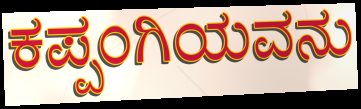
ಕಪ್ಪಂಗಿಯವನು